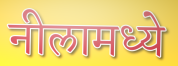
नीलामध्ये